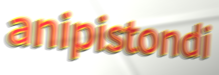
anipistondi